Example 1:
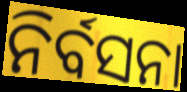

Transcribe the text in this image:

ନିର୍ବସନା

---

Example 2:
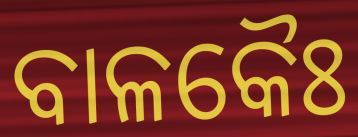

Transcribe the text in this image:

ବାଳକୈଃ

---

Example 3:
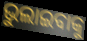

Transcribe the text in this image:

ଭୁଲାଇବାକୁ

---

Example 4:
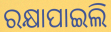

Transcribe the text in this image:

ରକ୍ଷାପାଇଲି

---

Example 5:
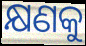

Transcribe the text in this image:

କ୍ଷଣକୁ